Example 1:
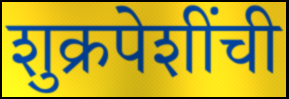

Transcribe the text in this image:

शुक्रपेशींची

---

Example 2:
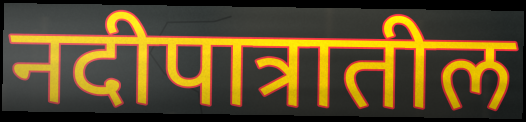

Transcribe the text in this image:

नदीपात्रातील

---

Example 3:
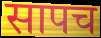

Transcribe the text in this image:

सापच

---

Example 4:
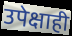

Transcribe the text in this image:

उपेक्षाही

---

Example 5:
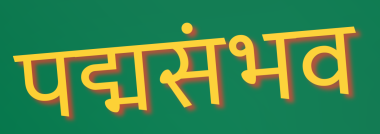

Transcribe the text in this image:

पद्मसंभव